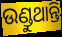
ଉଣ୍ଡୁଥାନ୍ତି